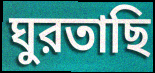
ঘুরতাছি